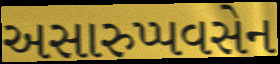
અસારુપ્પવસેન